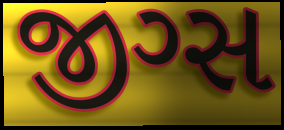
જીગ્સ